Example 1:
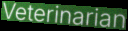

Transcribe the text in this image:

Veterinarian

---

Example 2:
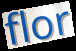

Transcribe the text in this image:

flor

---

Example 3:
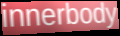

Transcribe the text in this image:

innerbody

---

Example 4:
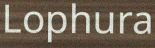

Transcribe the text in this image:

Lophura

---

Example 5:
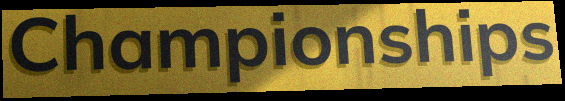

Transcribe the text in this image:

Championships